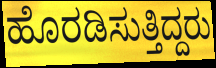
ಹೊರಡಿಸುತ್ತಿದ್ದರು